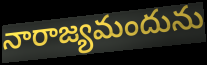
నారాజ్యమందును